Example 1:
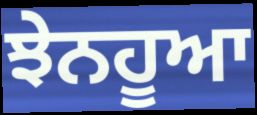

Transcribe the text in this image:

ਝੇਨਹੂਆ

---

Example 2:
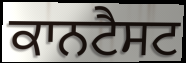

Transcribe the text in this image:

ਕਾਨਟੈਸਟ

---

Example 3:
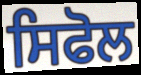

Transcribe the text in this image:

ਸਿਫੋਲ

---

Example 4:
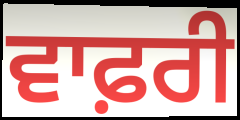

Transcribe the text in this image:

ਵਾਫ਼ਰੀ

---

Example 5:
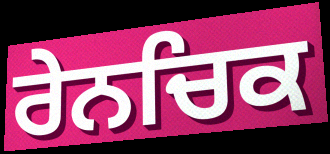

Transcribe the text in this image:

ਰੇਨਚਿਕ